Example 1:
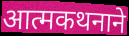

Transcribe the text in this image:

आत्मकथनाने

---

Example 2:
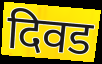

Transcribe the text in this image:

दिवड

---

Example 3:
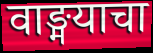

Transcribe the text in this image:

वाङ्मयाचा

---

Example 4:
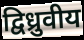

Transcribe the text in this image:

द्विध्रुवीय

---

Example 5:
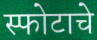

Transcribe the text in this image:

स्फोटाचे